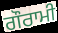
ਗੌਰਾਮੀ